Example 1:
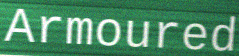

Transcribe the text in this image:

Armoured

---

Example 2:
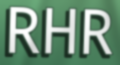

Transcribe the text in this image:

RHR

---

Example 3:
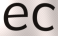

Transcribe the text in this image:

ec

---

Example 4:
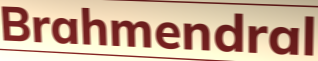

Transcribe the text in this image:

Brahmendral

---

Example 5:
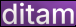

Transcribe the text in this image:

ditam